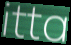
itta